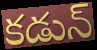
కడున్